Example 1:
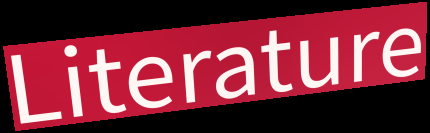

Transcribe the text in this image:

Literature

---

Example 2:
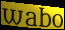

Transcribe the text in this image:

wabo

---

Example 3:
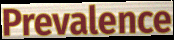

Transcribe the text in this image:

Prevalence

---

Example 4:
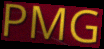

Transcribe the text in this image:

PMG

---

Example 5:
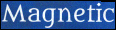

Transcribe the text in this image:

Magnetic